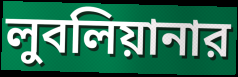
লুবলিয়ানার